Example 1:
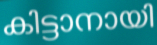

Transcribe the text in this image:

കിട്ടാനായി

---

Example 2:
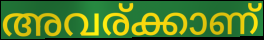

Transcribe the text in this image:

അവര്ക്കാണ്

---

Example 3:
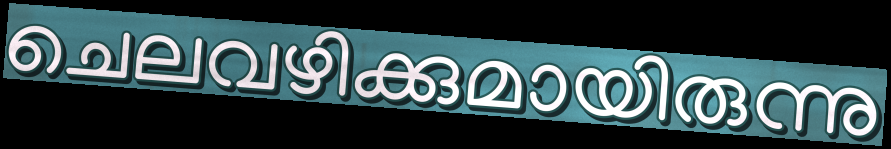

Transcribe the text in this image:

ചെലവഴിക്കുമായിരുന്നു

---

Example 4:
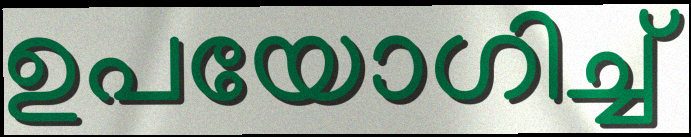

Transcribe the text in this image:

ഉപയോഗിച്ച്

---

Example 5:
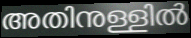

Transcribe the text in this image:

അതിനുള്ളിൽ